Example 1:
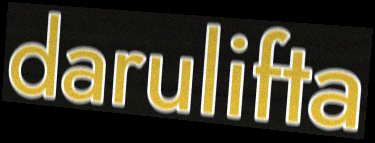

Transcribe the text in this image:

darulifta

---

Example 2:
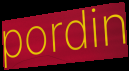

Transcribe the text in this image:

pordin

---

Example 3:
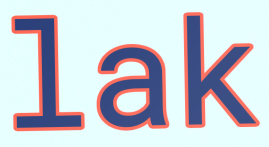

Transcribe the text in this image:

lak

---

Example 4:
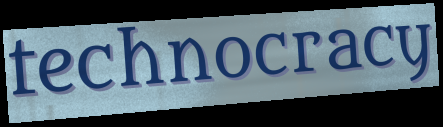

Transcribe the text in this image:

technocracy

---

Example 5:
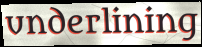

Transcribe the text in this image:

underlining